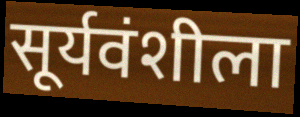
सूर्यवंशीला